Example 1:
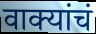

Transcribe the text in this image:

वाक्यांचं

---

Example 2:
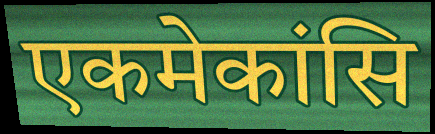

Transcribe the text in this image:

एकमेकांसि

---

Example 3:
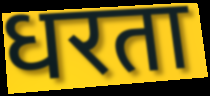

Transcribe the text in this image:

धरता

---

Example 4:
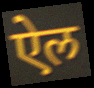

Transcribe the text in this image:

ऐल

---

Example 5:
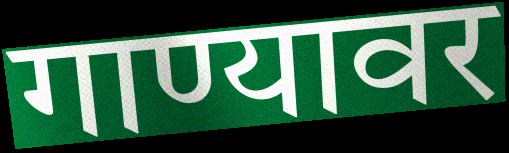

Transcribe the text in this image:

गाण्यावर